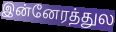
இன்னேரத்துல